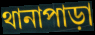
থানাপাড়া